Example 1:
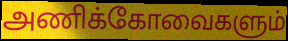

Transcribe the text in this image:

அணிக்கோவைகளும்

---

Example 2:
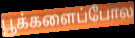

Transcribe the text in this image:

பூக்களைப்போல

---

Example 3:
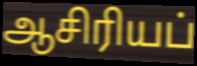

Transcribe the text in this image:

ஆசிரியப்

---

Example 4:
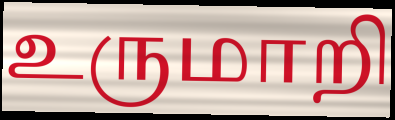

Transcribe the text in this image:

உருமாறி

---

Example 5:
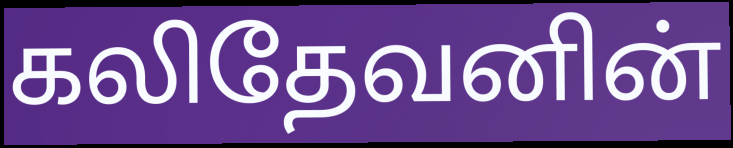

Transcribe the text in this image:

கலிதேவனின்